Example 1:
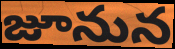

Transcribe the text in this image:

జూనున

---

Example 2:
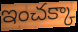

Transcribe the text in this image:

ఇంచక్కా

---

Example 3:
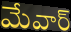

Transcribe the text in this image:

మేవార్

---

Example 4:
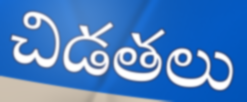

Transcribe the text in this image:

చిడతలు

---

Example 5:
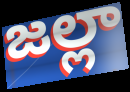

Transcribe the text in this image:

జల్లా